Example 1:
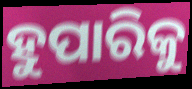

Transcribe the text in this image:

ହୁପାରିକୁ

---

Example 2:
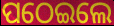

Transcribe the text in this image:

ପଠେଇଲେ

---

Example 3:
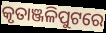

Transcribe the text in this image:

କୃତାଞ୍ଜଳିପୁଟରେ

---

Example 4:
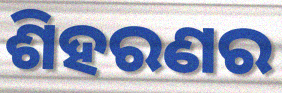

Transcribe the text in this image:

ଶିହରଣର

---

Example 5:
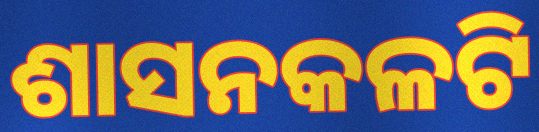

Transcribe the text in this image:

ଶାସନକଳଟି